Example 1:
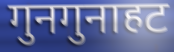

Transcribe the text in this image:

गुनगुनाहट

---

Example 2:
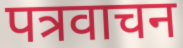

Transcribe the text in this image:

पत्रवाचन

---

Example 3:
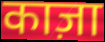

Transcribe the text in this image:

काज़ा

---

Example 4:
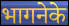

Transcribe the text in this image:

भागनेके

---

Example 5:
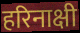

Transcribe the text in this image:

हरिनाक्षी